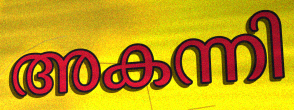
അകന്നി